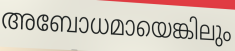
അബോധമായെങ്കിലും